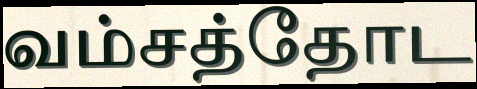
வம்சத்தோட